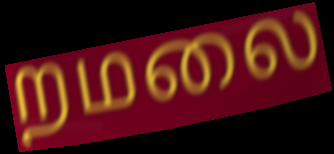
றமலை